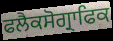
ਫਲੈਕਸੋਗ੍ਰਾਫਿਕ